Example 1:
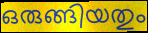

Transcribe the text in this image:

ഒരുങ്ങിയതും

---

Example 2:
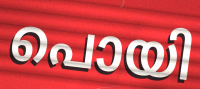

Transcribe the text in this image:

പൊയി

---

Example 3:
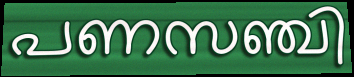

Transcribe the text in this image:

പണസഞ്ചി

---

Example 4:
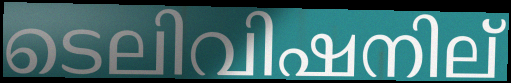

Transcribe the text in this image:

ടെലിവിഷനില്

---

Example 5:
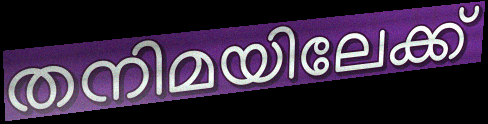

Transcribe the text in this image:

തനിമയിലേക്ക്